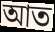
আত